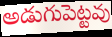
అడుగుపెట్టవు